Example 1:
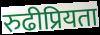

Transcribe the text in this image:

रुढीप्रियता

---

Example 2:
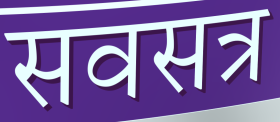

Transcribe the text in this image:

सवसत्र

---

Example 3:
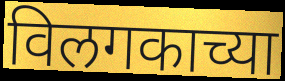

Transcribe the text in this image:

विलगकाच्या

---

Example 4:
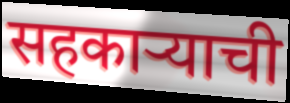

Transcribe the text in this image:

सहकाऱ्याची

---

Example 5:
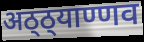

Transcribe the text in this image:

अठ्ठ्याण्णव